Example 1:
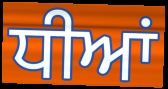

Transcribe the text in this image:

ਧੀਆਂ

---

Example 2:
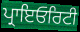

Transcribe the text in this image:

ਪ੍ਰਾਇਓਰਿਟੀ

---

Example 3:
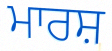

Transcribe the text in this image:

ਮਾਰਸ਼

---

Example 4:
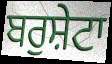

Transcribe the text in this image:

ਬਰੁਸ਼ੇਟਾ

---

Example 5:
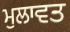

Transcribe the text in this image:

ਮੁਲਾਵਤ